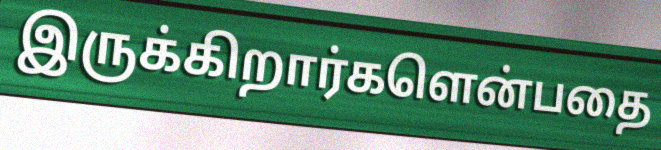
இருக்கிறார்களென்பதை